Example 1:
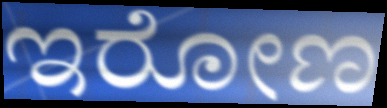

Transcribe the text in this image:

ಇರೋಣ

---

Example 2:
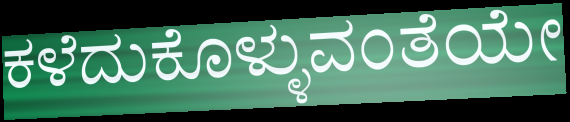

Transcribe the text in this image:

ಕಳೆದುಕೊಳ್ಳುವಂತೆಯೇ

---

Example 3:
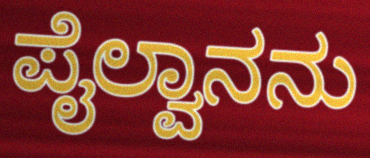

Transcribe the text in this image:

ಪೈಲ್ವಾನನು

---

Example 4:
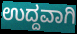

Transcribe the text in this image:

ಉದ್ದವಾಗಿ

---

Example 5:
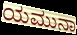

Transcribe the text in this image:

ಯಮುನಾ